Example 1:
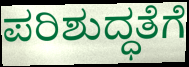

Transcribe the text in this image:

ಪರಿಶುದ್ಧತೆಗೆ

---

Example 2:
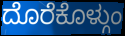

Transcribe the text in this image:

ದೊರೆಕೊಳ್ಗುಂ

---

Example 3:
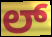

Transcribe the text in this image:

ಲ್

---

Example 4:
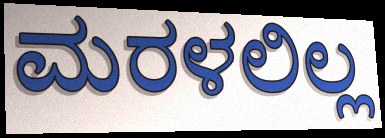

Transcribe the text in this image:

ಮರಳಲಿಲ್ಲ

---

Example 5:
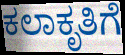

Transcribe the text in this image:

ಕಲಾಕೃತಿಗೆ